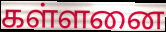
கள்ளனை